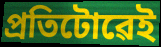
প্ৰতিটোৱেই